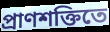
প্রাণশক্তিতে